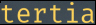
tertia